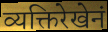
व्यक्तिरेखेनं